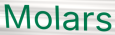
Molars